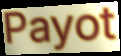
Payot